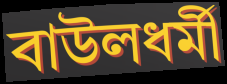
বাউলধর্মী